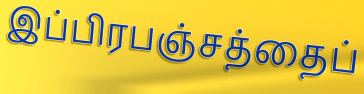
இப்பிரபஞ்சத்தைப்